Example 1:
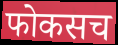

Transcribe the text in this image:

फोकसच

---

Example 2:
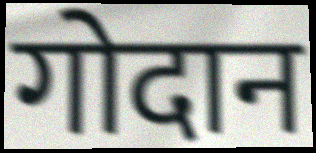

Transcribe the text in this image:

गोदान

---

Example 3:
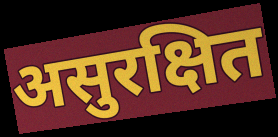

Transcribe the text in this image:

असुरक्षित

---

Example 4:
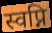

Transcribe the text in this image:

स्वप्नि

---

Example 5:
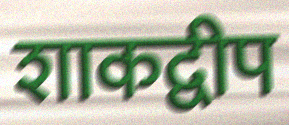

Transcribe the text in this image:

शाकद्वीप